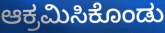
ಆಕ್ರಮಿಸಿಕೊಂಡು